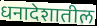
धनादेशातील